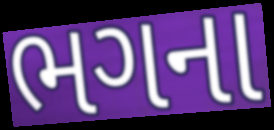
ભગના